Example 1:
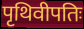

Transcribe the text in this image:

पृथिवीपतिः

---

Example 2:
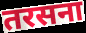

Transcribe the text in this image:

तरसना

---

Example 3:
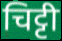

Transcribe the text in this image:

चिट्टी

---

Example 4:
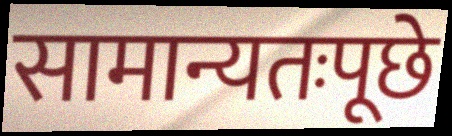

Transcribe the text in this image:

सामान्यतःपूछे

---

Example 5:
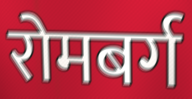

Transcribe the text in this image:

रोमबर्ग